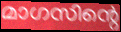
മാഗസിന്റെ